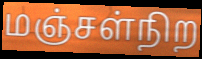
மஞ்சள்நிற